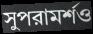
সুপরামর্শও